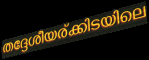
തദ്ദേശീയര്ക്കിടയിലെ